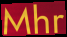
Mhr